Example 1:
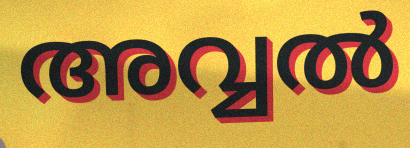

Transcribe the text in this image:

അവ്വൽ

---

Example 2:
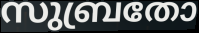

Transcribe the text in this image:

സുബ്രതോ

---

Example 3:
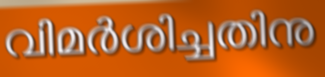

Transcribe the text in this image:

വിമർശിച്ചതിനു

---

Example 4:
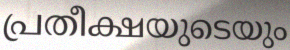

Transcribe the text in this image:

പ്രതീക്ഷയുടെയും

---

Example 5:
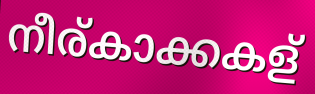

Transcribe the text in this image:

നീര്കാക്കകള്